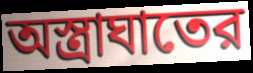
অস্ত্রাঘাতের